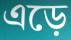
এড়ে